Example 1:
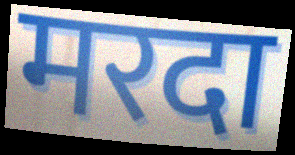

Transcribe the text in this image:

मरदा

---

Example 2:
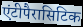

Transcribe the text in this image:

एंटीपैरासिटिक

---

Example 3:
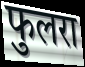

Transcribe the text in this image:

फुलरा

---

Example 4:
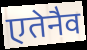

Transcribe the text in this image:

एतेनैव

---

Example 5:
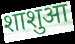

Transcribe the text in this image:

शाशुआ